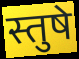
स्तुषे